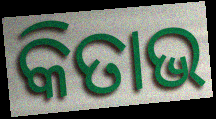
କିତାଭ